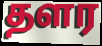
தளர